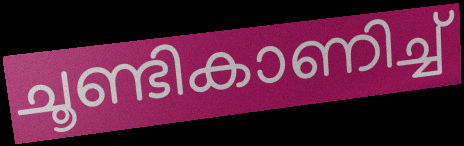
ചൂണ്ടികാണിച്ച്